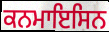
ਕਨਮਾਇਸਿਨ